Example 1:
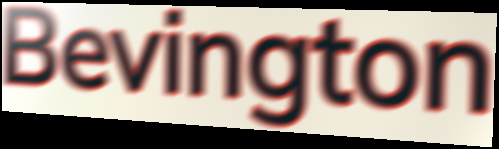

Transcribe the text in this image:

Bevington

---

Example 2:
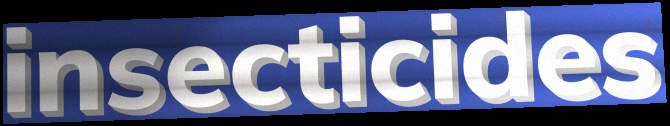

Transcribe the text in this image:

insecticides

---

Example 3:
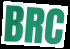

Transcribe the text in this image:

BRC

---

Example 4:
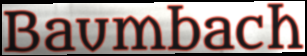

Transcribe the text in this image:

Baumbach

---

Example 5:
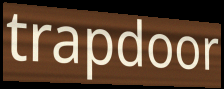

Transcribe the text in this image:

trapdoor